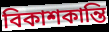
বিকাশকান্তি